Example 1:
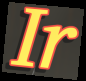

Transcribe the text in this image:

Ir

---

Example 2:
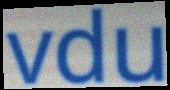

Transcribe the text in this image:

vdu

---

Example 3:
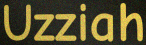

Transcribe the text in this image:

Uzziah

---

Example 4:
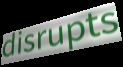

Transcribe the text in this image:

disrupts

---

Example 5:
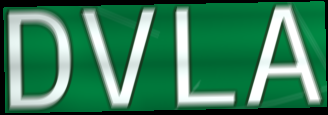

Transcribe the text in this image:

DVLA